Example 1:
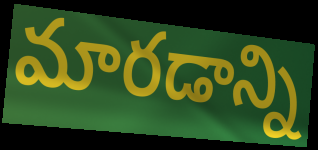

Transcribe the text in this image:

మారడాన్ని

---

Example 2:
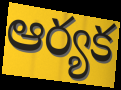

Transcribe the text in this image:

ఆర్యక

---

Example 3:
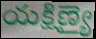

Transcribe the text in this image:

యక్షిణ్యై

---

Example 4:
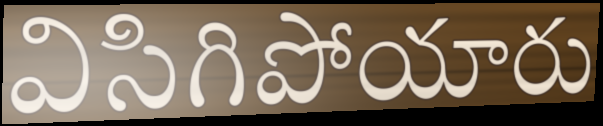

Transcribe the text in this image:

విసిగిపోయారు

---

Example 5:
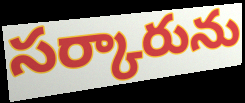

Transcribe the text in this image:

సర్కారును